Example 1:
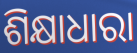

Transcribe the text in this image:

ଶିକ୍ଷାଧାରା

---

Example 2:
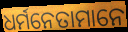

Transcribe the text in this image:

ଧର୍ମନେତାମାନେ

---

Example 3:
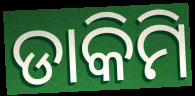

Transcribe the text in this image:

ଡାକିମି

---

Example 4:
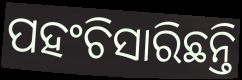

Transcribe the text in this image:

ପହଂଚିସାରିଛନ୍ତି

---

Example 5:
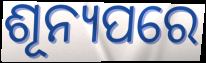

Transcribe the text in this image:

ଶୂନ୍ୟପରେ